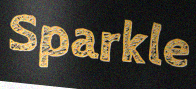
Sparkle